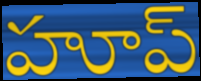
హూప్